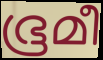
ഭൂമീ